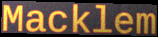
Macklem